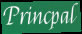
Princpal